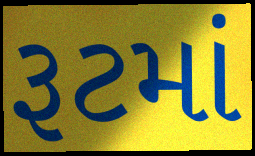
રૂટમાં